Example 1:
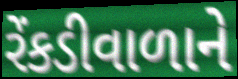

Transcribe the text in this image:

રેંકડીવાળાને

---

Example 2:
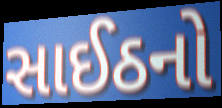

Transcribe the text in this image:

સાઈઠનો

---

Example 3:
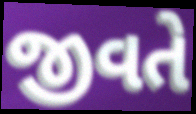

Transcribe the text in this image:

જીવતે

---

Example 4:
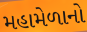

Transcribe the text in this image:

મહામેળાનો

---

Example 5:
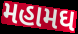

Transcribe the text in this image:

મહામઘ